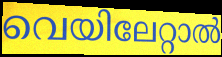
വെയിലേറ്റാൽ